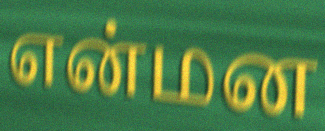
என்மன